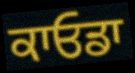
ਕਾਓਡਾ